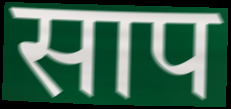
साप